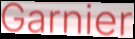
Garnier